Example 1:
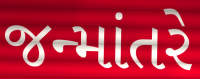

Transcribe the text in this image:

જન્માંતરે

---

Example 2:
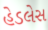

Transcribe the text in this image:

હેડલેસ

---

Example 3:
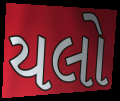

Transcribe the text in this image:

યલો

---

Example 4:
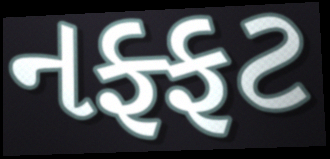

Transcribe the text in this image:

નફ્ફટ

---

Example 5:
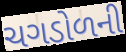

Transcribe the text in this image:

ચગડોળની